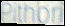
Pithori